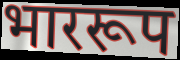
भाररूप